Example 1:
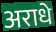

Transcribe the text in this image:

अराधे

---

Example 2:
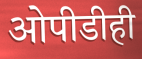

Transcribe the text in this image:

ओपीडीही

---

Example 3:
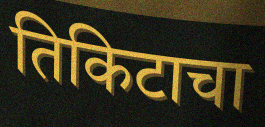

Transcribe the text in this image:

तिकिटाचा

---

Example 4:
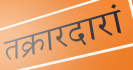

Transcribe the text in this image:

तक्रारदारां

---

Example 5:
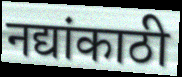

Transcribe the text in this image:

नद्यांकाठी